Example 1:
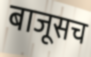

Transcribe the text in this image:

बाजूसच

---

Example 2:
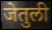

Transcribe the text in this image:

जेतुली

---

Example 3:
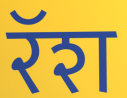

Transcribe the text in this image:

रॅश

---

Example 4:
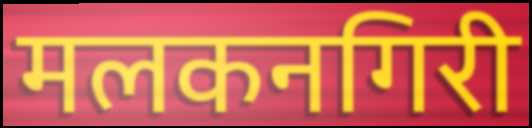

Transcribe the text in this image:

मलकनगिरी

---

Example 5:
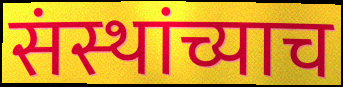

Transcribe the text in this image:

संस्थांच्याच